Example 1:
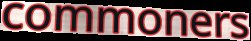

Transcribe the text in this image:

commoners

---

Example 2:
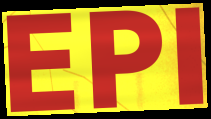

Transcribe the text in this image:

EPI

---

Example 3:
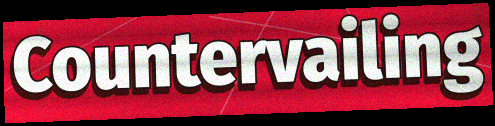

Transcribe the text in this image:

Countervailing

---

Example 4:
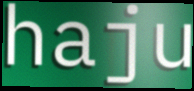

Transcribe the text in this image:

haju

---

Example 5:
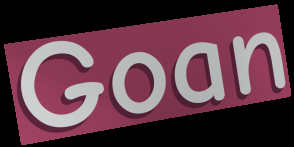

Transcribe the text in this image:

Goan